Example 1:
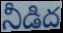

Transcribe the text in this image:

నీడిద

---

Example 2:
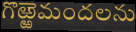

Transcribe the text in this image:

గొఱ్ఱెమందలను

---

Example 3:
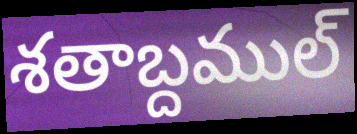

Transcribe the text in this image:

శతాబ్దముల్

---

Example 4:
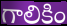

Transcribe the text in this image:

గాలికిం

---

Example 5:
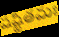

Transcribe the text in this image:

షష్టితమః